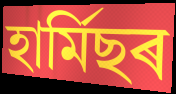
হাৰ্মিছৰ